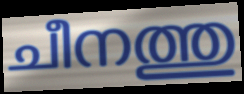
ചീനത്തു